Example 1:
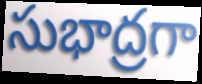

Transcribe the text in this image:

సుభాద్రగా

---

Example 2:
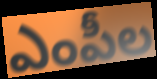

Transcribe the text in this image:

ఎంపీల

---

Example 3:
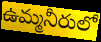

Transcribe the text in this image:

ఉమ్మనీరులో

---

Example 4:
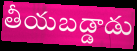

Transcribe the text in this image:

తీయబడ్డాడు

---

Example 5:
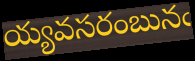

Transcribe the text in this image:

య్యవసరంబునఁ